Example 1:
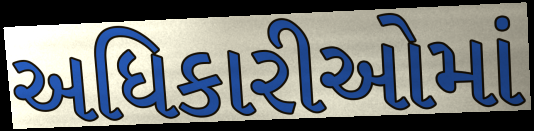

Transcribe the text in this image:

અધિકારીઓમાં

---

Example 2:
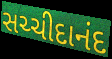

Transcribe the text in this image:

સચ્ચીદાનંદ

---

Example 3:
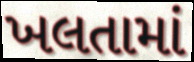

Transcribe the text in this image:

ખલતામાં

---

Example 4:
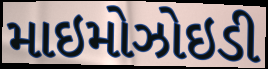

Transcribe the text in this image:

માઇમોઝોઇડી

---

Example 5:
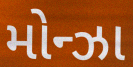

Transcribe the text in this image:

મોન્ઝા